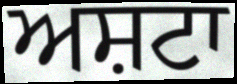
ਅਸ਼ਟਾ